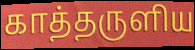
காத்தருளிய